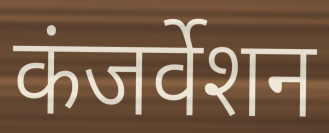
कंजर्वेशन